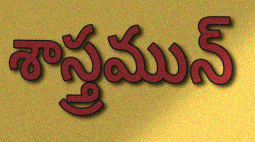
శాస్త్రమున్